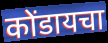
कोंडायचा